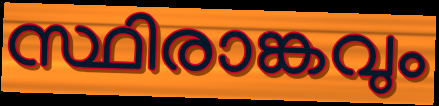
സ്ഥിരാങ്കവും